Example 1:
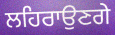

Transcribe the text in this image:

ਲਹਿਰਾਉਣਗੇ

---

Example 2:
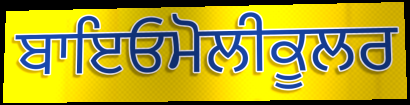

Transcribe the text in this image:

ਬਾਇਓਮੋਲੀਕੂਲਰ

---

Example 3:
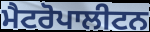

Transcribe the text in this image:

ਮੈਟਰੋਪਾਲੀਟਨ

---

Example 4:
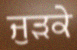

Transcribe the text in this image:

ਜੁੜਕੇ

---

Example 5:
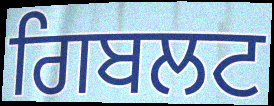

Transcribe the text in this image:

ਗਿਬਲਟ